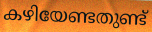
കഴിയേണ്ടതുണ്ട്